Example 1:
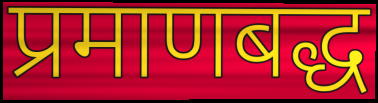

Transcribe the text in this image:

प्रमाणबद्ध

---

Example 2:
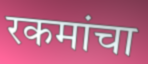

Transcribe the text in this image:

रकमांचा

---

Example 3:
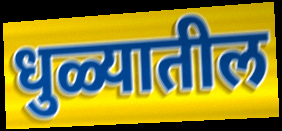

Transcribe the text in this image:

धुळ्यातील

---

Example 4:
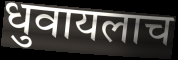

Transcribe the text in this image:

धुवायलाच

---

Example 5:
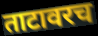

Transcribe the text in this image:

ताटावरच